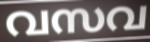
വസവ